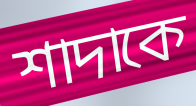
শাদাকে